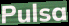
Pulsa